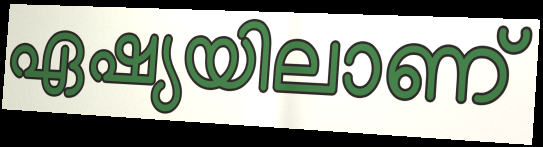
ഏഷ്യയിലാണ്